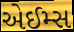
એઈમ્સ